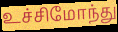
உச்சிமோந்து